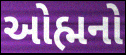
ઓહ્મનો